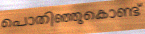
പൊതിഞ്ഞുകൊണ്ട്